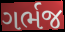
ગર્ભજ